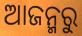
ଆଜନ୍ମରୁ